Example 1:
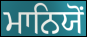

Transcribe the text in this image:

ਮਾਨਿਯੋਂ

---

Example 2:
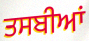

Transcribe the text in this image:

ਤਸਬੀਆਂ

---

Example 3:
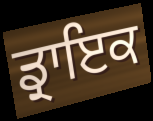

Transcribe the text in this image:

ਡ੍ਰਾਇਕ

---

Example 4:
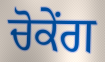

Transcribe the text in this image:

ਚੋਕੇਂਗ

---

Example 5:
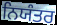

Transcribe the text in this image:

ਨਿਯੰਤਰ